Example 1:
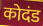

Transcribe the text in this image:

कोदंड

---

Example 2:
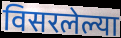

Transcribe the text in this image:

विसरलेल्या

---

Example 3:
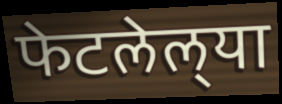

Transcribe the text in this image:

फेटलेल्या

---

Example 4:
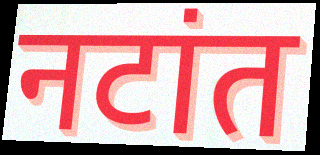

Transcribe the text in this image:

नटांत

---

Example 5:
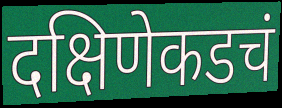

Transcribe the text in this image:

दक्षिणेकडचं